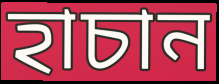
হাচান